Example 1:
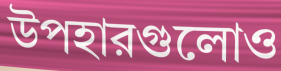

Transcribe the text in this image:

উপহারগুলোও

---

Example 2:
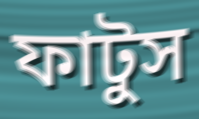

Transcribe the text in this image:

ফাটুস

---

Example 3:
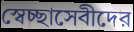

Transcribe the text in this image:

স্বেচ্ছাসেবীদের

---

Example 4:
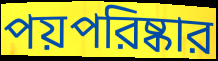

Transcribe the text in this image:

পয়পরিষ্কার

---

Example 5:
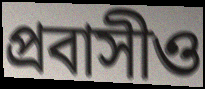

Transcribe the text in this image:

প্রবাসীও